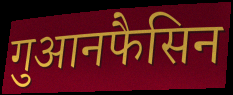
गुआनफैसिन